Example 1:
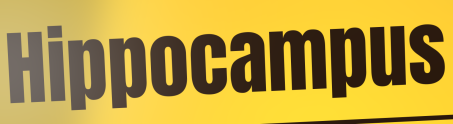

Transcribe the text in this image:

Hippocampus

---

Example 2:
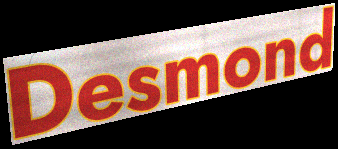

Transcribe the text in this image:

Desmond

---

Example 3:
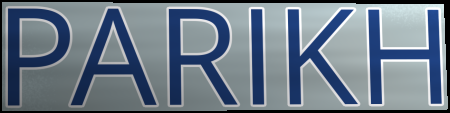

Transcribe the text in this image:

PARIKH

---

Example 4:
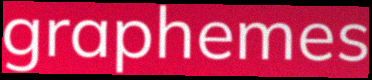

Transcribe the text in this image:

graphemes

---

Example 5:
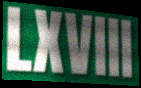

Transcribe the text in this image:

LXVIII